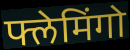
फ्लेमिंगो